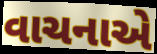
વાચનાએ